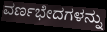
ವರ್ಣಭೇದಗಳನ್ನು